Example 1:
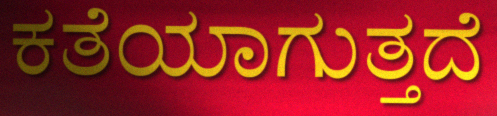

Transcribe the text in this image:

ಕತೆಯಾಗುತ್ತದೆ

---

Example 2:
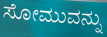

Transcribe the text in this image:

ಸೋಮುವನ್ನು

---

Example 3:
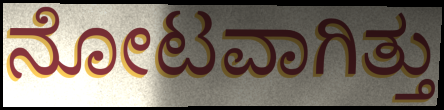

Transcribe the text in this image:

ನೋಟವಾಗಿತ್ತು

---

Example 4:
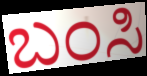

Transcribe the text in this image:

ಬಂಸಿ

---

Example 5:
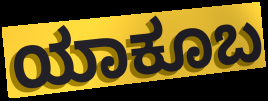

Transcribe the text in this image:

ಯಾಕೂಬ